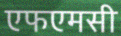
एफएमसी